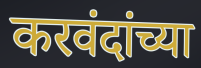
करवंदांच्या